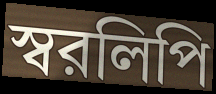
স্বরলিপি